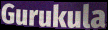
Gurukula